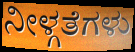
ನೀಳ್ಗತೆಗಳು